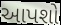
આપશો